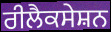
ਰੀਲੈਕਸੇਸ਼ਨ